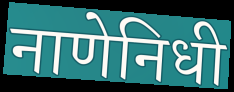
नाणेनिधी